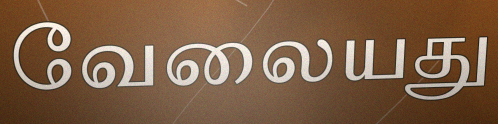
வேலையது